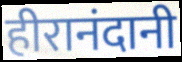
हीरानंदानी